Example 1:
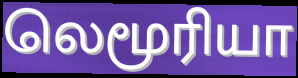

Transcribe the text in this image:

லெமூரியா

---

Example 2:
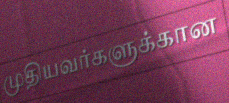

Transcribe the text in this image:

முதியவர்களுக்கான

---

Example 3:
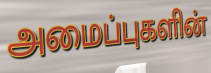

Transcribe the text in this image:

அமைப்புகளின்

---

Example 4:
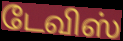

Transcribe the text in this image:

டேவிஸ்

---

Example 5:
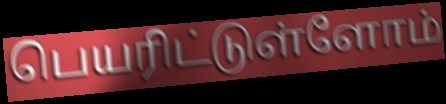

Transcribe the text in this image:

பெயரிட்டுள்ளோம்